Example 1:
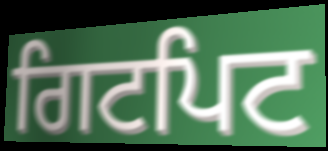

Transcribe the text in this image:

ਗਿਟਪਿਟ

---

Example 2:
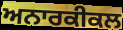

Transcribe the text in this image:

ਅਨਾਰਕੀਕਲ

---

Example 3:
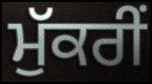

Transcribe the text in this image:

ਮੁੱਕਰੀਂ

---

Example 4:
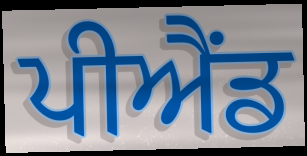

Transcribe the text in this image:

ਪੀਐਂਡ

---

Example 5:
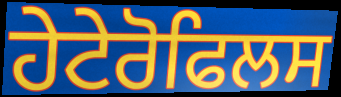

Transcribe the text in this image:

ਹੇਟੇਰੋਫਿਲਸ